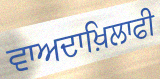
ਵਾਅਦਾਖ਼ਿਲਾਫੀ